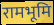
रामभूमि